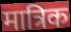
मात्रिक